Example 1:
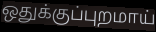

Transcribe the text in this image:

ஒதுக்குப்புறமாய்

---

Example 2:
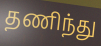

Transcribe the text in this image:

தணிந்து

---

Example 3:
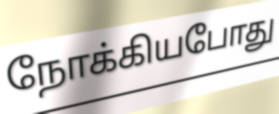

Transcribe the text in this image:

நோக்கியபோது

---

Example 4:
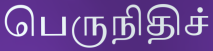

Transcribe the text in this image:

பெருநிதிச்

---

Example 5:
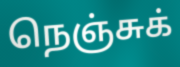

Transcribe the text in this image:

நெஞ்சுக்